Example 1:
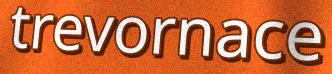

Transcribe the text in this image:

trevornace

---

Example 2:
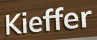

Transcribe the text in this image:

Kieffer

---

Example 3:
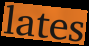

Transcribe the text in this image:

lates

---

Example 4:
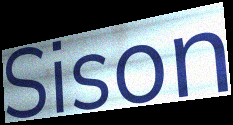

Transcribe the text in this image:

Sison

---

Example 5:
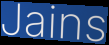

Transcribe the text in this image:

Jains